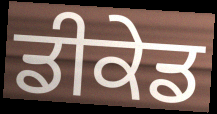
ਡੀਕੇਡ